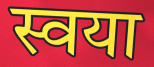
स्वया